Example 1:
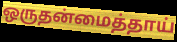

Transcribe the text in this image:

ஒருதன்மைத்தாய்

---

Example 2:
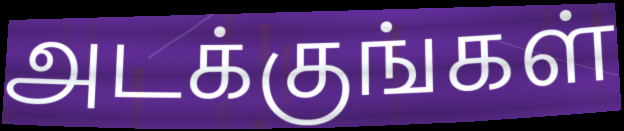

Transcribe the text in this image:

அடக்குங்கள்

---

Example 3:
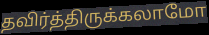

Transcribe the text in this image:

தவிர்த்திருக்கலாமோ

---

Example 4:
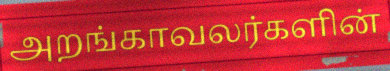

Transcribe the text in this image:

அறங்காவலர்களின்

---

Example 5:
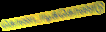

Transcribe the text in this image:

கொண்டாடிக்கொண்டு